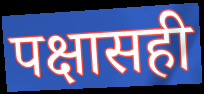
पक्षासही